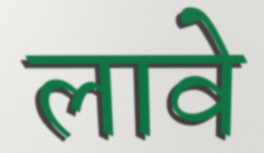
लावे